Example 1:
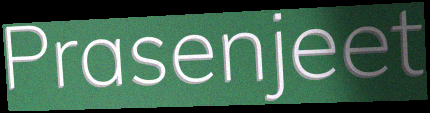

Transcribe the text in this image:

Prasenjeet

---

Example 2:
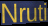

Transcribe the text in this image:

Nruti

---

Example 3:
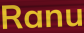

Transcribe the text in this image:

Ranu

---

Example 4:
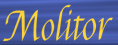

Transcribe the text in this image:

Molitor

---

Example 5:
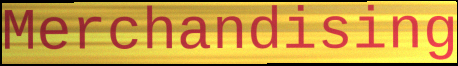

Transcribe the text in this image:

Merchandising